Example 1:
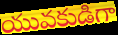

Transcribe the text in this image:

యువకుడిగా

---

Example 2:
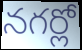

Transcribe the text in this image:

నగర్లో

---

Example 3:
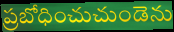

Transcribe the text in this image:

ప్రబోధించుచుండెను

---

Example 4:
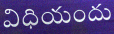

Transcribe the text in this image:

విధియందు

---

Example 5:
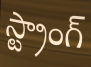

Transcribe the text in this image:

స్ట్రాంగ్